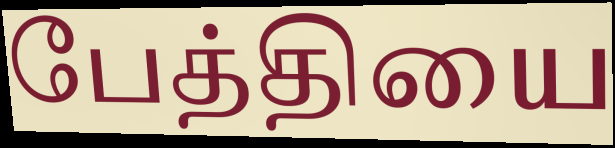
பேத்தியை